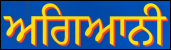
ਅਗਿਆਨੀ